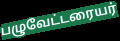
பழுவேட்டரையர்